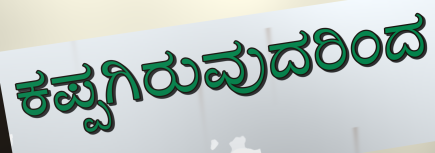
ಕಪ್ಪಗಿರುವುದರಿಂದ